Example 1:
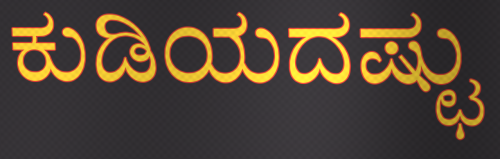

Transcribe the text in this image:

ಕುಡಿಯದಷ್ಟು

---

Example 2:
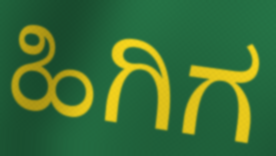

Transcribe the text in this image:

ಹಿಗಿಗ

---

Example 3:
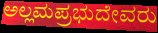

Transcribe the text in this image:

ಅಲ್ಲಮಪ್ರಭುದೇವರು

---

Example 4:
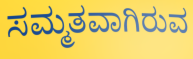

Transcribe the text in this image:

ಸಮ್ಮತವಾಗಿರುವ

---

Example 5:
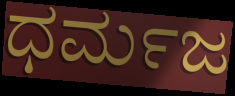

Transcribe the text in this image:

ಧರ್ಮಜ